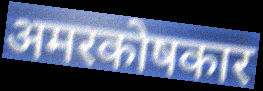
अमरकोषकार